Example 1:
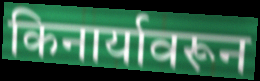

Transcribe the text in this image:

किनार्यावरून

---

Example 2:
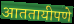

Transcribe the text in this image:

आततायीपणे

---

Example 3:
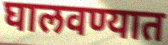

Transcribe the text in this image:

घालवण्यात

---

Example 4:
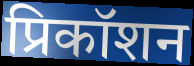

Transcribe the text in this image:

प्रिकॉशन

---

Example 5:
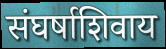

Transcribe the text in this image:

संघर्षाशिवाय